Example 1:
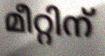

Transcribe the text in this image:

മീറ്റിന്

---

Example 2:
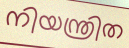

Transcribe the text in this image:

നിയന്ത്രിത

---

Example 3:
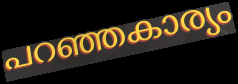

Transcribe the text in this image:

പറഞ്ഞകാര്യം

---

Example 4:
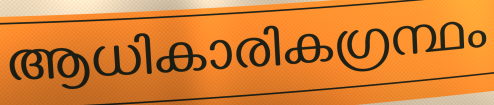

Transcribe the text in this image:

ആധികാരികഗ്രന്ഥം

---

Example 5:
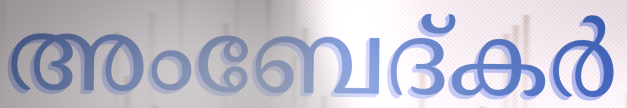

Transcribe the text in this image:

അംബേദ്കർ